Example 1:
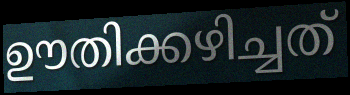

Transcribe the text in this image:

ഊതിക്കഴിച്ചത്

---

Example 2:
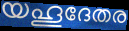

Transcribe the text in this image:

യഹൂദേതര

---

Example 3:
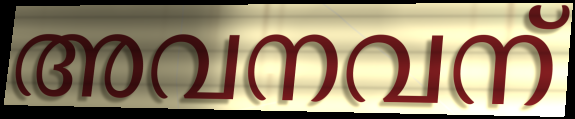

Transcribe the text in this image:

അവനവന്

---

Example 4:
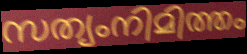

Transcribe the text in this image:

സത്യംനിമിത്തം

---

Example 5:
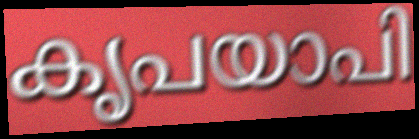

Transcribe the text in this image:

കൃപയാപി